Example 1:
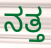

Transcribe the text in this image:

ನತ್ತ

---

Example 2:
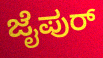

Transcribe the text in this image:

ಜೈಪುರ್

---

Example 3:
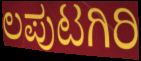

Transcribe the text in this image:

ಲಪುಟಗಿರಿ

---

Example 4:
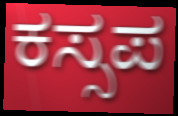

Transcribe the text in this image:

ಕಸ್ಸಪ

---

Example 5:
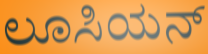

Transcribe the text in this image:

ಲೂಸಿಯನ್